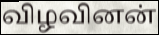
விழவினன்